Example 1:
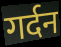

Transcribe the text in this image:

गर्दन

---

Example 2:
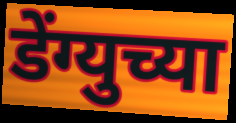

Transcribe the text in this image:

डेंग्युच्या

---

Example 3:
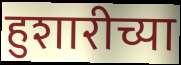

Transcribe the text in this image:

हुशारीच्या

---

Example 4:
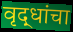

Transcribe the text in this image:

वृद्धांचा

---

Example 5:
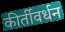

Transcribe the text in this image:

कीर्तीवर्धन